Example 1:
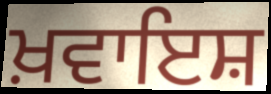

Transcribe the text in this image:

ਖ਼ਵਾਇਸ਼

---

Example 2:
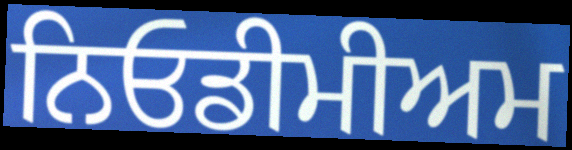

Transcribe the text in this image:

ਨਿਓਡੀਮੀਅਮ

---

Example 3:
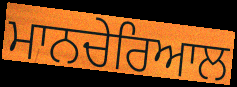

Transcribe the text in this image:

ਮਾਨਚੇਰਿਆਲ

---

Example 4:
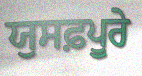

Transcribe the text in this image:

ਯੁਸਫ਼ਪੂਰੇ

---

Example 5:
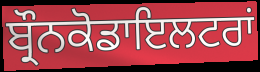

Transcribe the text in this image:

ਬ੍ਰੌਨਕੋਡਾਇਲਟਰਾਂ